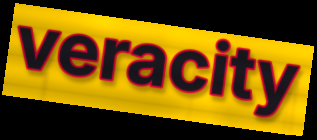
veracity